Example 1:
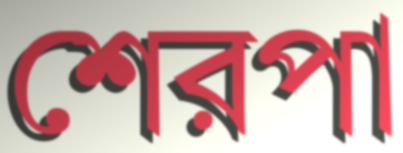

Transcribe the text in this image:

শেরপা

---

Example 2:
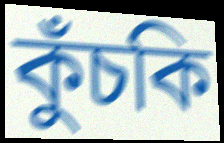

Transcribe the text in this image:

কুঁচকি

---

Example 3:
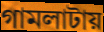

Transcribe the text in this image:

গামলাটায়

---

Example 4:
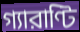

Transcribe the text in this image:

গ্যারাণ্টি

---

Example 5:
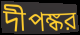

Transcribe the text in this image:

দীপঙ্কর